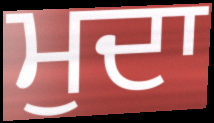
ਮੁਦਾ